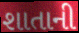
શાતાની